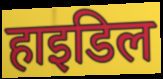
हाइडिल